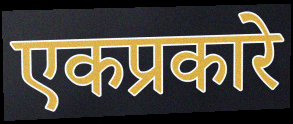
एकप्रकारे